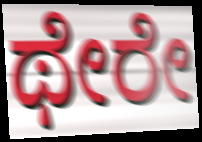
ಥೇರೇ